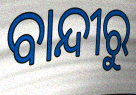
ବାନ୍ଦୀରୁ